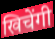
खिचेंगी